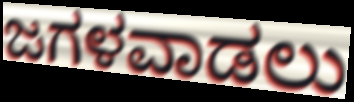
ಜಗಳವಾಡಲು